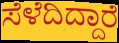
ಸೆಳೆದಿದ್ದಾರೆ